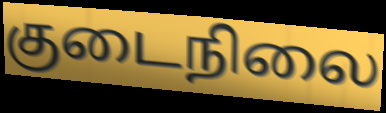
குடைநிலை